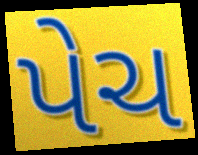
પેચ